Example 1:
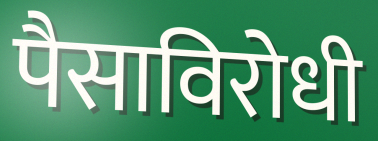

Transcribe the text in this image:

पैसाविरोधी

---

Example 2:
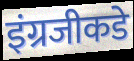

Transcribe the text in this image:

इंग्रजीकडे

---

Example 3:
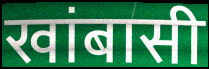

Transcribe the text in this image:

खांबासी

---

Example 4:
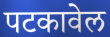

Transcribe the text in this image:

पटकावेल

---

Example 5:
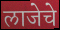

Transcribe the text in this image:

लाजेचे